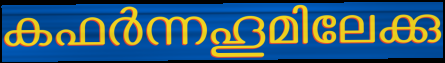
കഫർന്നഹൂമിലേക്കു